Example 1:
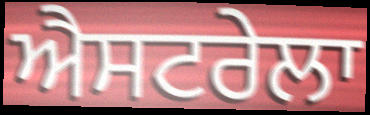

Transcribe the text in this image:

ਐਸਟਰੇਲਾ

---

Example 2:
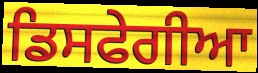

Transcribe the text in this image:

ਡਿਸਫੇਗੀਆ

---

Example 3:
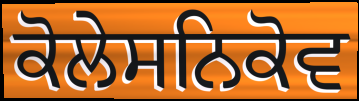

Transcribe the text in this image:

ਕੋਲੇਸਨਿਕੋਵ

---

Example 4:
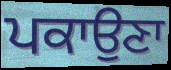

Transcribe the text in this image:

ਪਕਾਉਣਾ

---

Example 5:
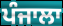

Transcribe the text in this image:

ਪੰਜਾਲਾ